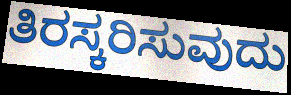
ತಿರಸ್ಕರಿಸುವುದು